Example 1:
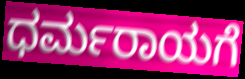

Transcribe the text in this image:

ಧರ್ಮರಾಯಗೆ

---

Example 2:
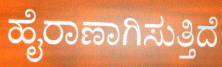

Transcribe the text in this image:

ಹೈರಾಣಾಗಿಸುತ್ತಿದೆ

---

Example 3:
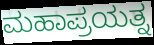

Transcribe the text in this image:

ಮಹಾಪ್ರಯತ್ನ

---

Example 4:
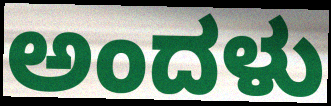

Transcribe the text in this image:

ಅಂದಳು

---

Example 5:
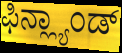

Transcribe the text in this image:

ಫಿನ್ಲ್ಯಾಂಡ್